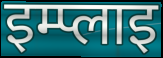
इम्प्लाइ